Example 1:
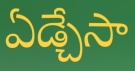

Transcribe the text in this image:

ఏడ్చేసా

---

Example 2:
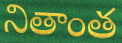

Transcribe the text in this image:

నితాంత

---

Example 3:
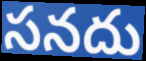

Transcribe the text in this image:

సనదు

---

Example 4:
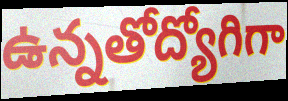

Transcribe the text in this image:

ఉన్నతోద్యోగిగా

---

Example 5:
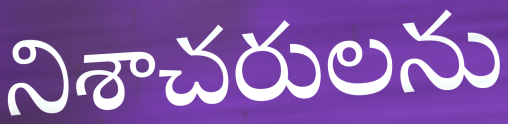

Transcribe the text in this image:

నిశాచరులను